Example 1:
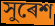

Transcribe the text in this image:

সুৰেশ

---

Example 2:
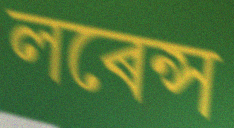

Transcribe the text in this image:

লৰেন্স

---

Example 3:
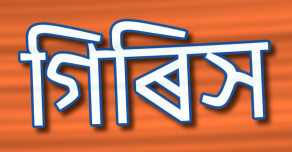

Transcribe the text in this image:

গিৰিস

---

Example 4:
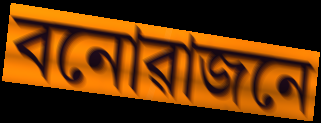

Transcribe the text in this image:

বনোৱাজনে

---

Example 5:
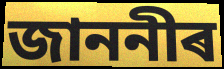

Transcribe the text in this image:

জাননীৰ